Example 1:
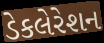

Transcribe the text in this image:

ડેકલેરેશન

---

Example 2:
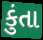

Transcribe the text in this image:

કુંતા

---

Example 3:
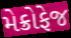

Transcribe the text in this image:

મેક્રોફેજ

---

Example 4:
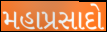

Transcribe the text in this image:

મહાપ્રસાદો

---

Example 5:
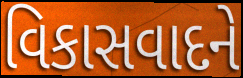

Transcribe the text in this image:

વિકાસવાદને